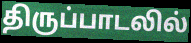
திருப்பாடலில்